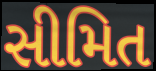
સીમિત